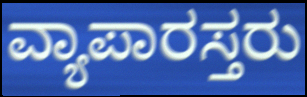
ವ್ಯಾಪಾರಸ್ತರು